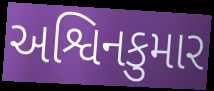
અશ્વિનકુમાર